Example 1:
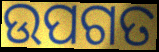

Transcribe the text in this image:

ଉପଗତ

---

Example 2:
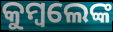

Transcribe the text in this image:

କୁମ୍ବଲେଙ୍କ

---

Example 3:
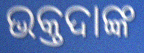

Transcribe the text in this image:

ଭକ୍ତଦାଙ୍କ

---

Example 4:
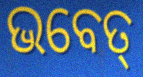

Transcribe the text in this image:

ଭବେତ୍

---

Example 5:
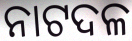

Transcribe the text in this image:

ନାଟଦଳ